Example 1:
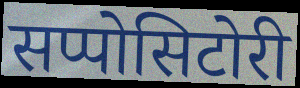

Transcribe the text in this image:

सप्पोसिटोरी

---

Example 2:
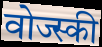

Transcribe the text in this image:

वोज्स्की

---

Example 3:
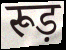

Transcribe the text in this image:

रूड़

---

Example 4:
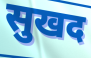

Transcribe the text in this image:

सुखद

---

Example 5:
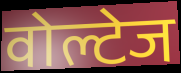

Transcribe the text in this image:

वोल्टेज